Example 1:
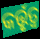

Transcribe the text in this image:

କର୍ତ୍ତୃତ୍ଵ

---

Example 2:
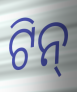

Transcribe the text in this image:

ଟିନ୍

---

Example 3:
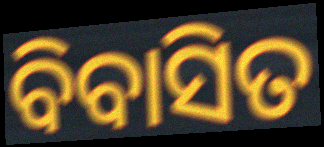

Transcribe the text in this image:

ବିବାସିତ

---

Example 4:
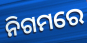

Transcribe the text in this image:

ନିଗମରେ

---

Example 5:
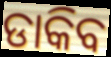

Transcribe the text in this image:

ଡାକିବ